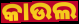
କାଉଲ